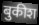
बुकीश